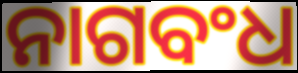
ନାଗବଂଧ